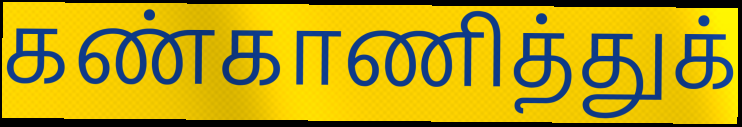
கண்காணித்துக்